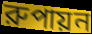
ৰুপায়ন